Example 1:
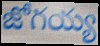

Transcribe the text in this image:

జోగయ్య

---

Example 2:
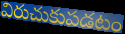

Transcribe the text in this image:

విరుచుకుపడటం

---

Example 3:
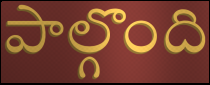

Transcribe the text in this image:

పాల్గొంది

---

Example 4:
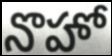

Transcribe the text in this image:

నొహో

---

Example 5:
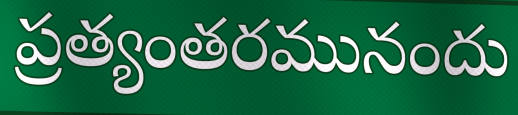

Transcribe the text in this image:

ప్రత్యంతరమునందు